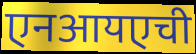
एनआयएची